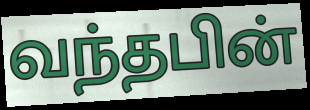
வந்தபின்